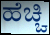
ಹೆಚ್ಚಿ